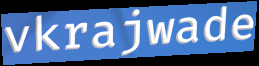
vkrajwade